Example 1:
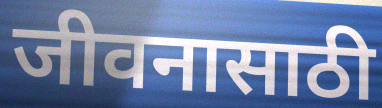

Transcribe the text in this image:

जीवनासाठी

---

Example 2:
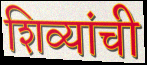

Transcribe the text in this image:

शिव्यांची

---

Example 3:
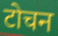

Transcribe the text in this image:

टोचन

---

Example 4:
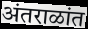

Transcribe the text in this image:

अंतराळांत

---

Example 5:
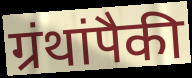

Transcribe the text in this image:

ग्रंथांपैकी